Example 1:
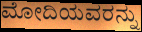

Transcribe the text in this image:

ಮೋದಿಯವರನ್ನು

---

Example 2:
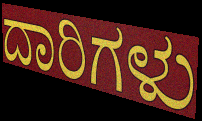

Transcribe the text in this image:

ದಾರಿಗಳು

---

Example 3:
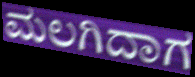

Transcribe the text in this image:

ಮಲಗಿದಾಗ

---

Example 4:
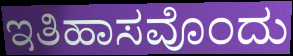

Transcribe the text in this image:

ಇತಿಹಾಸವೊಂದು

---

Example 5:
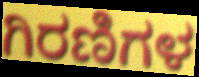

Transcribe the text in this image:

ಗಿರಣಿಗಳ